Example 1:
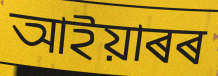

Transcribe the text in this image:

আইয়াৰৰ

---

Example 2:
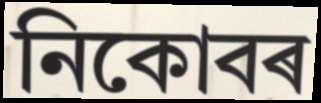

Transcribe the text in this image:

নিকোবৰ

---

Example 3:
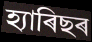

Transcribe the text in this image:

হ্যাৰিছৰ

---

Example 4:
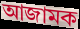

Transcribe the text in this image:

আজামক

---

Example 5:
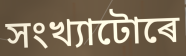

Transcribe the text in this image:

সংখ্যাটোৰে